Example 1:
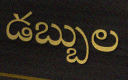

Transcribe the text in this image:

డబ్బుల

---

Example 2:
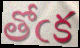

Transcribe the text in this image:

తోఁక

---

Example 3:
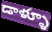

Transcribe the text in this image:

డాళ్ళూ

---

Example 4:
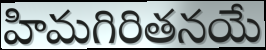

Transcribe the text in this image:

హిమగిరితనయే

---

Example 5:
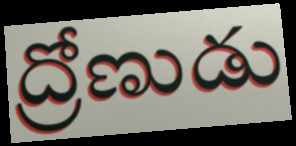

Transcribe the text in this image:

ద్రోణుడు